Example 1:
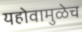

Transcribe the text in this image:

यहोवामुळेच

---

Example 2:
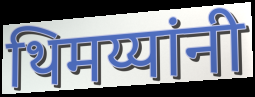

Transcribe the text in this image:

थिमय्यांनी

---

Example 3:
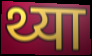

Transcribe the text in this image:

थ्या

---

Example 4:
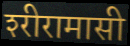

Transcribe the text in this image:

श्रीरामासी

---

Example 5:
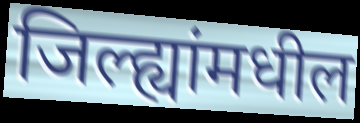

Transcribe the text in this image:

जिल्ह्यांमधील